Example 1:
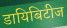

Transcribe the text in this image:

डायिबिटीज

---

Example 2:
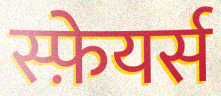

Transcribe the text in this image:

स्फ़ेयर्स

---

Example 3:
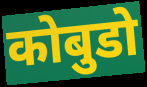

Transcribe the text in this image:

कोबुडो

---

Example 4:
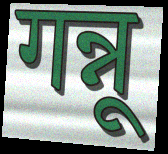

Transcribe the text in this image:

गन्नू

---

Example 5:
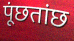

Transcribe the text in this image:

पूंछतांछ